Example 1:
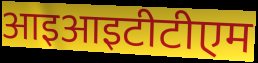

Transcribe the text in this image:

आइआइटीटीएम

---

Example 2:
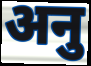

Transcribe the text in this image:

अनु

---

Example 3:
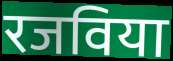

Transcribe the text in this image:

रजविया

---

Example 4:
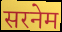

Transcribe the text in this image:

सरनेम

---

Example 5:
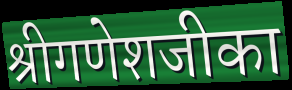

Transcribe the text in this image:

श्रीगणेशजीका